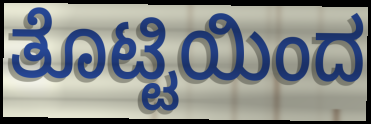
ತೊಟ್ಟಿಯಿಂದ